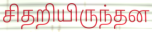
சிதறியிருந்தன